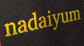
nadaiyum